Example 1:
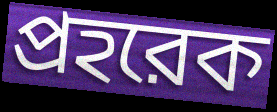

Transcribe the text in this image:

প্রহরেক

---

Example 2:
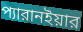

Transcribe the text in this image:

প্যারানইয়ার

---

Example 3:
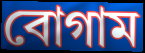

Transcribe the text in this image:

বোগাম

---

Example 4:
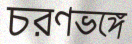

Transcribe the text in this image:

চরণভঙ্গে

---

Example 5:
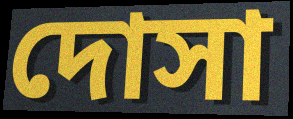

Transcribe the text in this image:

দোসা